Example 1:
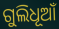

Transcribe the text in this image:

ଗୁଲିଧୂଆଁ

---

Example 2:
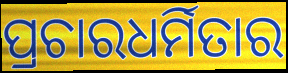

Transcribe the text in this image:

ପ୍ରଚାରଧର୍ମିତାର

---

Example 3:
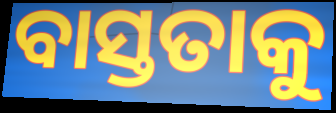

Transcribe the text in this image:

ବାସ୍ତତାକୁ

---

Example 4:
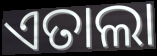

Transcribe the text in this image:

ଏତାଲା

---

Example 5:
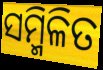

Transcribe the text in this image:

ସମ୍ମିଳିତ